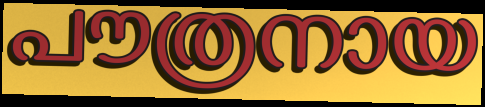
പൗത്രനായ